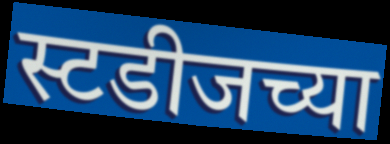
स्टडीजच्या